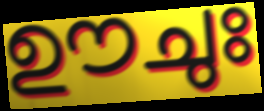
ഊചുഃ